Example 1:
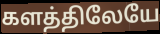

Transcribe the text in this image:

களத்திலேயே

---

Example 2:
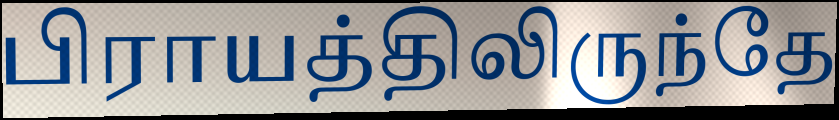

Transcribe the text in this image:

பிராயத்திலிருந்தே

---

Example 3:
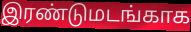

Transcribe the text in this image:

இரண்டுமடங்காக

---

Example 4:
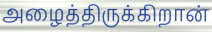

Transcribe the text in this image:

அழைத்திருக்கிறான்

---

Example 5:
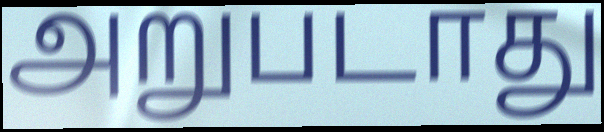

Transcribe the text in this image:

அறுபடாது